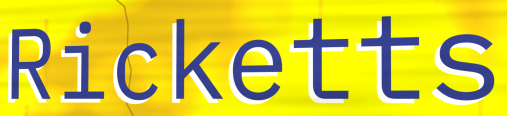
Ricketts